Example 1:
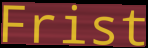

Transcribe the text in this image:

Frist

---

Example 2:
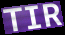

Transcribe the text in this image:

TIR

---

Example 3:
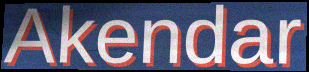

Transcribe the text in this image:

Akendar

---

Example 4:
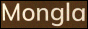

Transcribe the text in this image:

Mongla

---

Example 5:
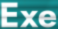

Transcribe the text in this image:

Exe